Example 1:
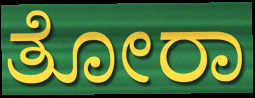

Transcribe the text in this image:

ತೋರಾ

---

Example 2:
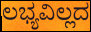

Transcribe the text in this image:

ಲಭ್ಯವಿಲ್ಲದ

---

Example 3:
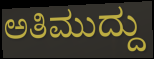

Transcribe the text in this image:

ಅತಿಮುದ್ದು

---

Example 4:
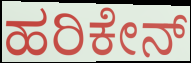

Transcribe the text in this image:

ಹರಿಕೇನ್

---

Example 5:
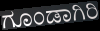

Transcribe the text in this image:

ಗೂಂಡಾಗಿರಿ